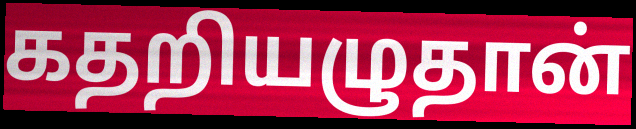
கதறியழுதான்